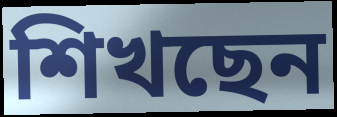
শিখছেন